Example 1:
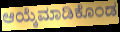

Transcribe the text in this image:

ಆಯ್ಕೆಮಾಡಿಕೊಂಡ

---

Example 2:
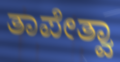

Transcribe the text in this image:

ತಾಪೇತ್ವಾ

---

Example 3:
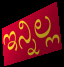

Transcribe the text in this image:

ಇನ್ನಿಲ್ಲ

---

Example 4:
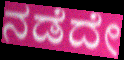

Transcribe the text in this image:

ನಡೆದೇ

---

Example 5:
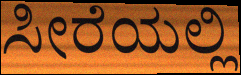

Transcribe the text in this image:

ಸೀರೆಯಲ್ಲಿ